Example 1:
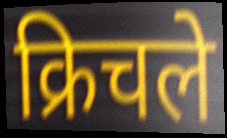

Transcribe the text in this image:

क्रिचले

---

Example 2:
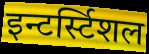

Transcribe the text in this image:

इन्टर्स्टिशल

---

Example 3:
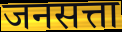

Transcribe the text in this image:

जनसत्ता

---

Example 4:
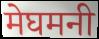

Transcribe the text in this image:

मेघमनी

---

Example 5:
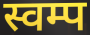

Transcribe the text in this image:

स्वम्प